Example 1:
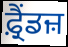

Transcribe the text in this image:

ਫ਼੍ਰੈਂਡਜ਼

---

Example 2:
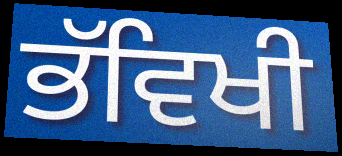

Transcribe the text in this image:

ਭੱਵਿਖੀ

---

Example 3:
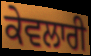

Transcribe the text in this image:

ਕੇਵਲਾਰੀ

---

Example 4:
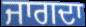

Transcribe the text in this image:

ਜਾਗਦਾ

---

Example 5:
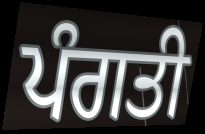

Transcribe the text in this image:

ਪੰਗਤੀ